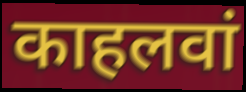
काहलवां